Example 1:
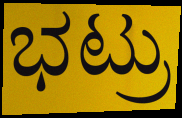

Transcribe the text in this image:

ಭಟ್ರು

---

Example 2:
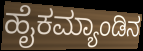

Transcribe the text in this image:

ಹೈಕಮ್ಯಾಂಡಿನ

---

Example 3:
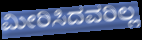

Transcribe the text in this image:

ಮೀರಿಸಿದವರಿಲ್ಲ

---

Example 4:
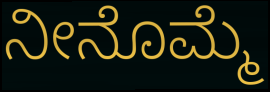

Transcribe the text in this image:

ನೀನೊಮ್ಮೆ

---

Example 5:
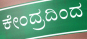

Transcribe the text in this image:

ಕೇಂದ್ರದಿಂದ